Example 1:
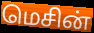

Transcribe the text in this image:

மெசின்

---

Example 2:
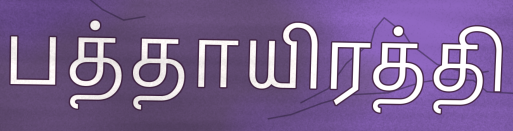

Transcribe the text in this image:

பத்தாயிரத்தி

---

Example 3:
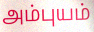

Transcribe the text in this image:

அம்புயம்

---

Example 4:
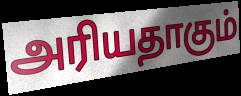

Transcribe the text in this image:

அரியதாகும்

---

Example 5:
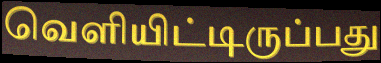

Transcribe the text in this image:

வெளியிட்டிருப்பது